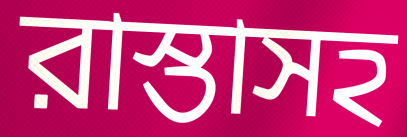
রাস্তাসহ